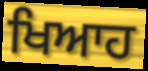
ਖਿਆਹ